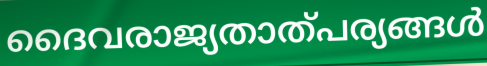
ദൈവരാജ്യതാത്പര്യങ്ങൾ